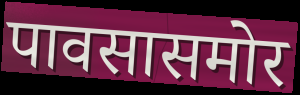
पावसासमोर